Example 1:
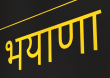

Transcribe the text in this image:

भयाणा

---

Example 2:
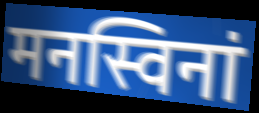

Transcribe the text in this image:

मनस्विनां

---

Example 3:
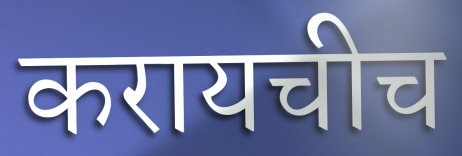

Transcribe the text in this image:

करायचीच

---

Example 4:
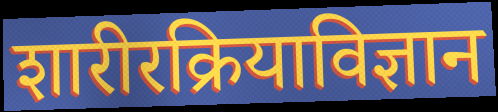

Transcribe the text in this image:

शारीरक्रियाविज्ञान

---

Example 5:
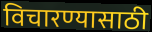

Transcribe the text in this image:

विचारण्यासाठी